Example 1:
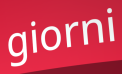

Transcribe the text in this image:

giorni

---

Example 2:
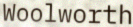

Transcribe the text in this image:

Woolworth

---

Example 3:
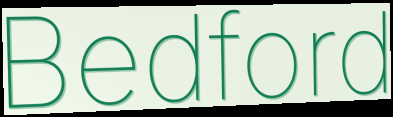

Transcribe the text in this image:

Bedford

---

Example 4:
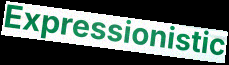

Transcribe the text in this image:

Expressionistic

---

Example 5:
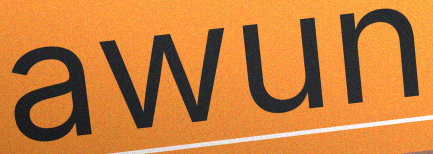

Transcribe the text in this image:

awun